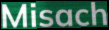
Misach